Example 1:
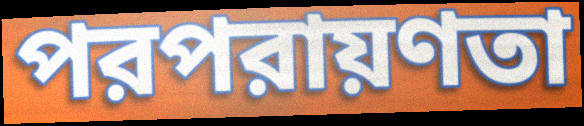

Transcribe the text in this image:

পরপরায়ণতা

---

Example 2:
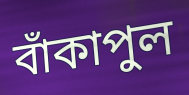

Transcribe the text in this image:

বাঁকাপুল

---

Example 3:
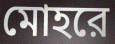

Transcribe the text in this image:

মোহরে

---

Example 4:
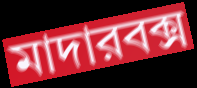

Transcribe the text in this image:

মাদারবক্স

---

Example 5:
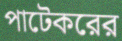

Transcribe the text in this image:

পাটেকরের